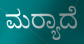
ಮರ‍್ಯಾದೆ